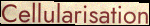
Cellularisation